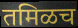
तमिळच